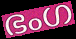
ഭംഗ